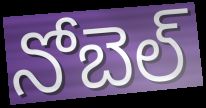
నోబెల్